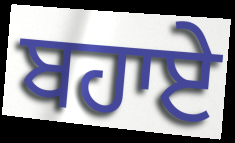
ਬਹਾਏ